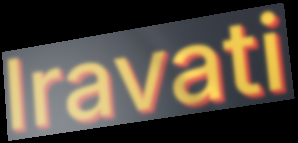
Iravati